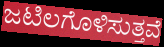
ಜಟಿಲಗೊಳಿಸುತ್ತವೆ